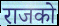
राजको